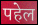
पहेल